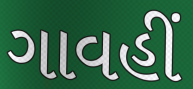
ગાવહીં